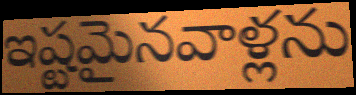
ఇష్టమైనవాళ్లను